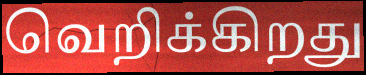
வெறிக்கிறது